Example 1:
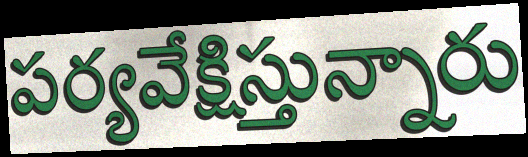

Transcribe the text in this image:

పర్యవేక్షిస్తున్నారు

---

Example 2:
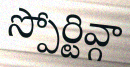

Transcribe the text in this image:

స్పోర్టివ్గా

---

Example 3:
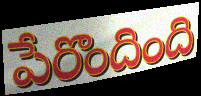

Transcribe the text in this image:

పేరొందింది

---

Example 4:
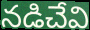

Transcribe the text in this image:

నడిచేవి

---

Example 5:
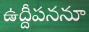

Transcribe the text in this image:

ఉద్దీపననూ